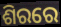
ଶିରରେ